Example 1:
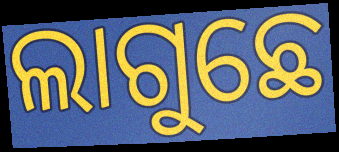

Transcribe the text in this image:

ଲାଗୁଛେ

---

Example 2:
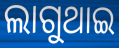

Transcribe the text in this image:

ଲାଗୁଥାଇ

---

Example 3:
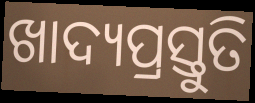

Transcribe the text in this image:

ଖାଦ୍ୟପ୍ରସ୍ତୁତି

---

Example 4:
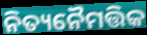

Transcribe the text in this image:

ନିତ୍ୟନୈମତ୍ତିକ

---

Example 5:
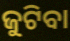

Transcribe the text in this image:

ଜୁଟିବା